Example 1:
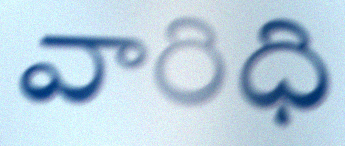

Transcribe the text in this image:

వారిధి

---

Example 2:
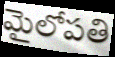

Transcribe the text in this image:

మైలోపతి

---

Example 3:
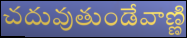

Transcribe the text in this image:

చదువుతుండేవాణ్ణి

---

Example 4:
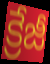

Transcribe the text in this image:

క్రేజీ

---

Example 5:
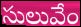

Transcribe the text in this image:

సులువేం